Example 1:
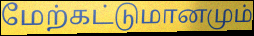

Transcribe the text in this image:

மேற்கட்டுமானமும்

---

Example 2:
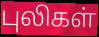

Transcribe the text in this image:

புலிகள்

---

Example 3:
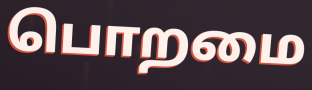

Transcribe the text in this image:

பொறமை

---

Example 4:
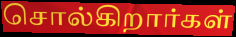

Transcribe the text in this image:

சொல்கிறார்கள்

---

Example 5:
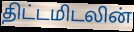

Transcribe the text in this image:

திட்டமிடலின்